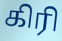
கிரி